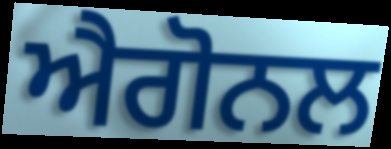
ਐਗੋਨਲ